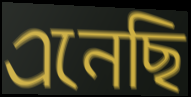
এনেছি